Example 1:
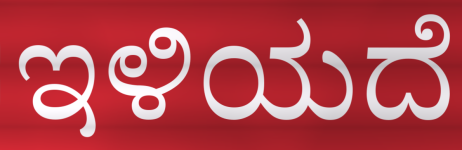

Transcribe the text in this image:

ಇಳಿಯದೆ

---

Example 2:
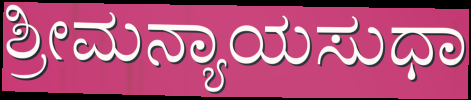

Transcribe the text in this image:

ಶ್ರೀಮನ್ಯಾಯಸುಧಾ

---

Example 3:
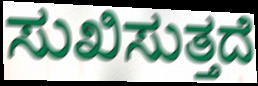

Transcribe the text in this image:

ಸುಖಿಸುತ್ತದೆ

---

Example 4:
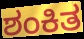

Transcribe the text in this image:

ಶಂಕಿತ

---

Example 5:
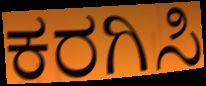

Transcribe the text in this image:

ಕರಗಿಸಿ